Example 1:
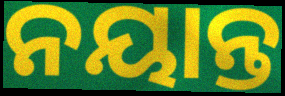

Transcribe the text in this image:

ନୟାନ୍ତ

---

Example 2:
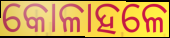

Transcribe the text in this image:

କୋଳାହଳେ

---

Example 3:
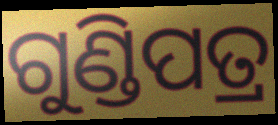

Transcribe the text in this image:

ଗୁଣ୍ଡିପତ୍ର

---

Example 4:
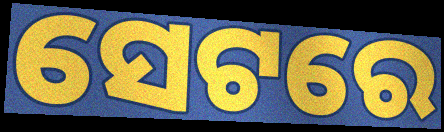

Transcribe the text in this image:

ସେଟରେ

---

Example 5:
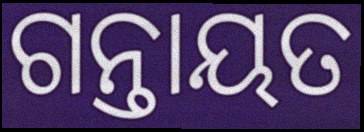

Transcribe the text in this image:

ଗନ୍ତାୟତ